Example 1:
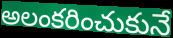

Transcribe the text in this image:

అలంకరించుకునే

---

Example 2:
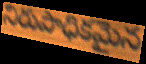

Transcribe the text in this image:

నిరుపాధికమైన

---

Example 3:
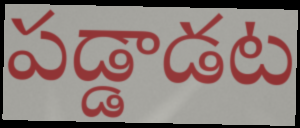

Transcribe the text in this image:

పడ్డాడట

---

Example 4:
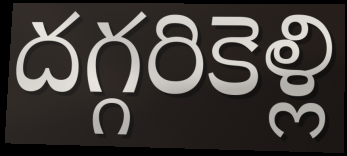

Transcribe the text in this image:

దగ్గరికెళ్లి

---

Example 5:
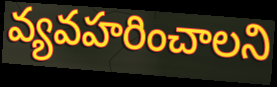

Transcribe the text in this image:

వ్యవహరించాలని